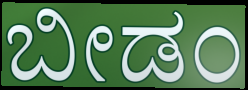
ಬೀಡಂ